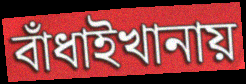
বাঁধাইখানায়